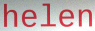
helen